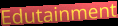
Edutainment